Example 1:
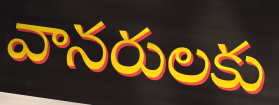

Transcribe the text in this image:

వానరులకు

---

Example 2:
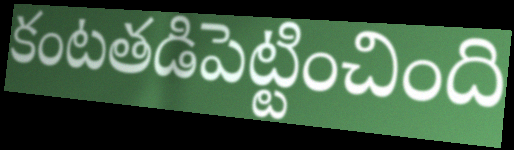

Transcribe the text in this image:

కంటతడిపెట్టించింది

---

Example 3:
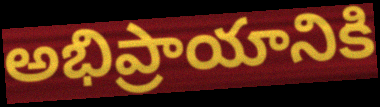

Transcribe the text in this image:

అభిప్రాయానికి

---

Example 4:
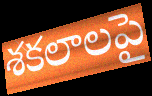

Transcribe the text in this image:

శకలాలపై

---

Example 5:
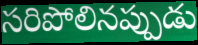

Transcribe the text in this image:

సరిపోలినప్పుడు